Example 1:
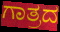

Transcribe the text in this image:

ಗಾತ್ರದ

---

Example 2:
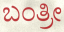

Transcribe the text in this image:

ಬಂತ್ರೀ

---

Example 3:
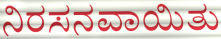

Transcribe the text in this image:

ನಿರಸನವಾಯಿತು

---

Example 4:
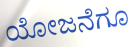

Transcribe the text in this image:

ಯೋಜನೆಗೂ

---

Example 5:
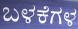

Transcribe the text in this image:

ಬಳಕೆಗಳ